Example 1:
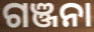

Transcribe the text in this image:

ଗଞ୍ଜନା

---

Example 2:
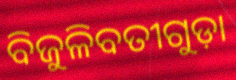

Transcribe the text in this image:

ବିଜୁଳିବତୀଗୁଡ଼ା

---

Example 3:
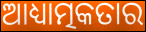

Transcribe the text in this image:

ଆଧ୍ୟାତ୍ମକତାର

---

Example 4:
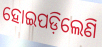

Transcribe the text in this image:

ହୋଇପଡ଼ିଲେଣି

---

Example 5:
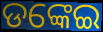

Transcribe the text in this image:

ଡଙ୍କେଇ